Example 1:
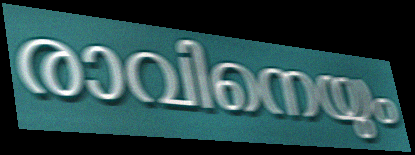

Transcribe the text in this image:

രാവിനെയും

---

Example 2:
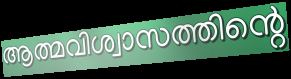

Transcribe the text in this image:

ആത്മവിശ്വാസത്തിന്റെ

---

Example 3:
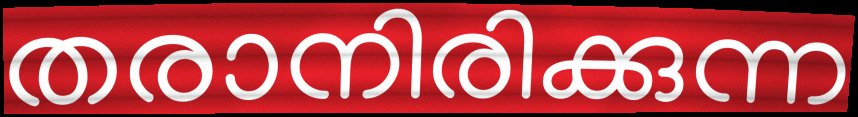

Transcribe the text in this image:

തരാനിരിക്കുന്ന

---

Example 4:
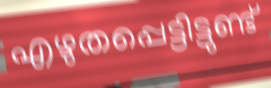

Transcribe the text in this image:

എഴുതപ്പെട്ടിട്ടുണ്ട്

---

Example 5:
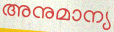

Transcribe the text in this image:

അനുമാന്യ